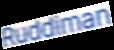
Ruddiman